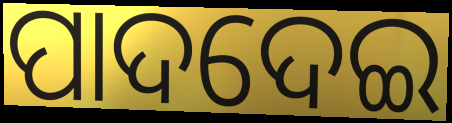
ପାଦଦେଇ